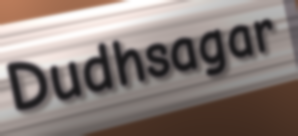
Dudhsagar